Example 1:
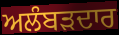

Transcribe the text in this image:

ਅਲੰਬੜਦਾਰ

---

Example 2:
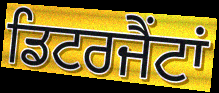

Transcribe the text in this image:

ਡਿਟਰਜੈਂਟਾਂ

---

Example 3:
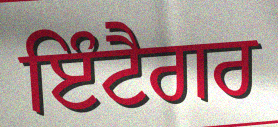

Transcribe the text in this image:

ਇੰਟੈਗਰ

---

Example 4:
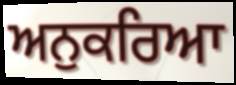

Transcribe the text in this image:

ਅਨੁਕਰਿਆ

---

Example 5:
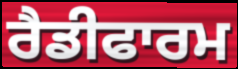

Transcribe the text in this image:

ਰੈਡੀਫਾਰਮ